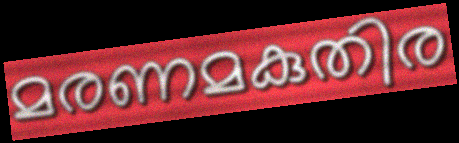
മരണമകുതിര